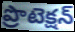
ప్రొటెక్షన్